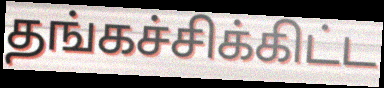
தங்கச்சிக்கிட்ட